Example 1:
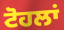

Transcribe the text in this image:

ਟੋਹਲਾਂ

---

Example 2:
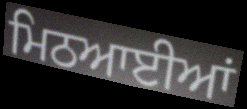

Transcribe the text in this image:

ਮਿਠਆਈਆਂ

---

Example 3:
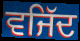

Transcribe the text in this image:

ਵਜਿੱਦ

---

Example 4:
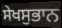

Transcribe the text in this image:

ਸੇਖਸੁਭਾਨ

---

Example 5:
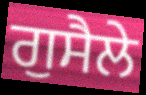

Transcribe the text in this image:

ਗੁਸੈਲੇ